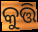
କୁତ୍ତି